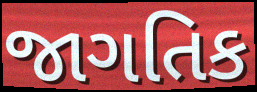
જાગતિક